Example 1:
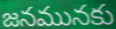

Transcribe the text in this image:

జనమునకు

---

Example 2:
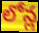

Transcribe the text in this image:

లోన్ల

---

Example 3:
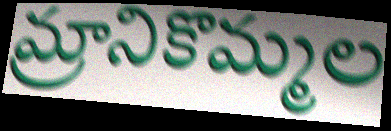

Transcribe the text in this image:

మ్రానికొమ్మల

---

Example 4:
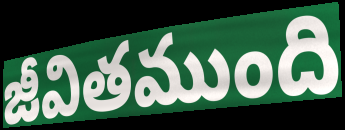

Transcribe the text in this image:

జీవితముంది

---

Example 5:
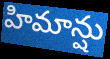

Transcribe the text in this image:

హిమాన్షు